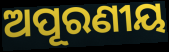
ଅପୂରଣୀୟ